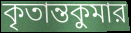
কৃতান্তকুমার